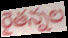
రైతన్నల